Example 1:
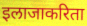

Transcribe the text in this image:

इलाजाकरिता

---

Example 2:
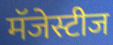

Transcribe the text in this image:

मॅजेस्टीज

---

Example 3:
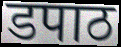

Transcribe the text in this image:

डपाठ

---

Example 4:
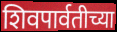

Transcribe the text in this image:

शिवपार्वतीच्या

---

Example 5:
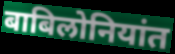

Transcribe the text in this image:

बाबिलोनियांत